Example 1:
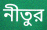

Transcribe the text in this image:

নীতুর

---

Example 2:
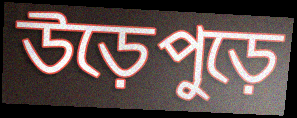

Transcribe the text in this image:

উড়েপুড়ে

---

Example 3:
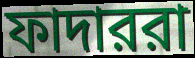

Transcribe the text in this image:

ফাদাররা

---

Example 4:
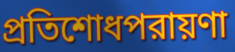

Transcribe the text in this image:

প্রতিশোধপরায়ণা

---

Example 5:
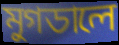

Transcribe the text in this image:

মুগডালে